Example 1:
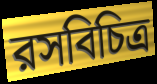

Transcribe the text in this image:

রসবিচিত্র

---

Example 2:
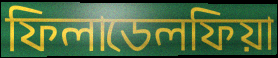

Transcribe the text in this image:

ফিলাডেলফিয়া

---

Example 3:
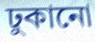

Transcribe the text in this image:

ঢুকানো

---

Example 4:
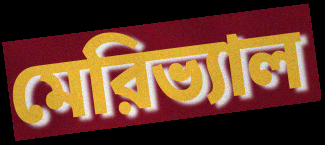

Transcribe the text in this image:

মেরিভ্যাল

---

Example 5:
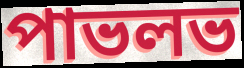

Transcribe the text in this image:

পাভলভ